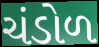
ચંડોળ